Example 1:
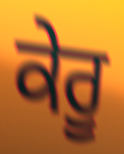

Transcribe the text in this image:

ਕੇਰੂ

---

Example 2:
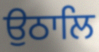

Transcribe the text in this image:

ਉਠਾਲਿ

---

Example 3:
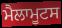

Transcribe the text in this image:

ਮੈਲਾਮੂਟਸ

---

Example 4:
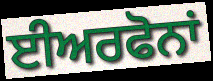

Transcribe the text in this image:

ਈਅਰਫੋਨਾਂ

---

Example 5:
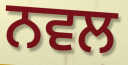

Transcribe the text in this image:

ਨਵਲ